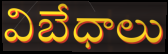
విబేధాలు